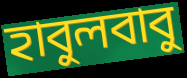
হাবুলবাবু